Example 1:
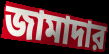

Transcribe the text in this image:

জামাদার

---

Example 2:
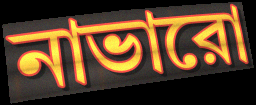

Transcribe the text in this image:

নাভারো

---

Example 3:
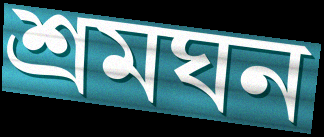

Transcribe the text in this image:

শ্রমঘন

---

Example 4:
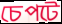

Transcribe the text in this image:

চেপটে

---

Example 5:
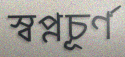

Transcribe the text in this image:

স্বপ্নচূর্ণ